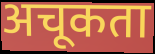
अचूकता